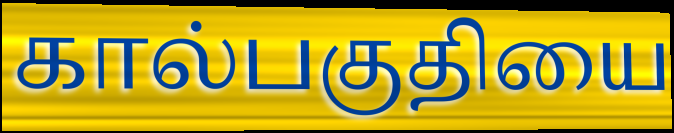
கால்பகுதியை